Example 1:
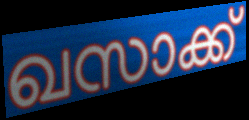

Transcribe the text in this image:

ഖസാക്ക്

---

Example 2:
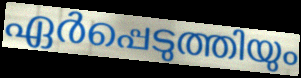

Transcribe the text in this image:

ഏർപ്പെടുത്തിയും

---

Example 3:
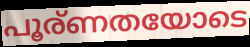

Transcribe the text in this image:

പൂര്ണതയോടെ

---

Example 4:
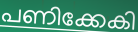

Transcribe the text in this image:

പണിക്കേകി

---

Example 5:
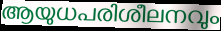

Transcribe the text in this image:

ആയുധപരിശീലനവും